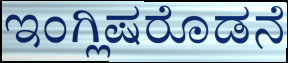
ಇಂಗ್ಲಿಷರೊಡನೆ